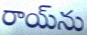
రాయ్‌ను